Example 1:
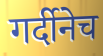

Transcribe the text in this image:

गर्दीनेच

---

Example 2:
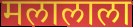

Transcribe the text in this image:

मलालाला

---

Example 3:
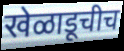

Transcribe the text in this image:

खेळाडूचीच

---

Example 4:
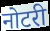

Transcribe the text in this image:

नोटरी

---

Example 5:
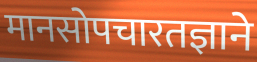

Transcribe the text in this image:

मानसोपचारतज्ञाने